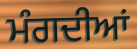
ਮੰਗਦੀਆਂ